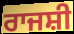
ਰਾਜਸ਼ੀ